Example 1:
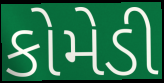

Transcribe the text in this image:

કોમેડી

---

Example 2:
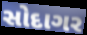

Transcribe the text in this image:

સોદાગર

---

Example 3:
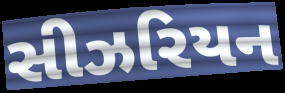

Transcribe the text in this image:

સીઝરિયન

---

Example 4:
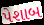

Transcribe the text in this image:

પેશાબ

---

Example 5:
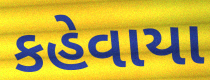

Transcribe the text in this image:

કહેવાયા